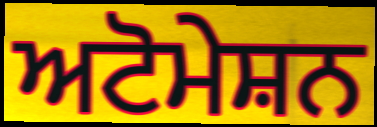
ਅਟੋਮੇਸ਼ਨ